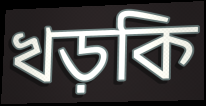
খড়কি